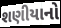
શણીયાનો